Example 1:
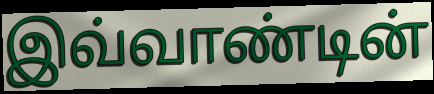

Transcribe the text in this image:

இவ்வாண்டின்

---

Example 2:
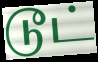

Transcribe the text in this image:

டூட்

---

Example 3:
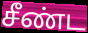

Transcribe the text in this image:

சீண்ட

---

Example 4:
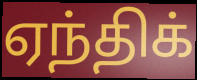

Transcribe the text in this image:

ஏந்திக்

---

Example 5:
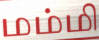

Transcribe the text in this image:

மம்மி